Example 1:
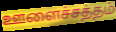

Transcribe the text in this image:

ஊளைச்சத்தம்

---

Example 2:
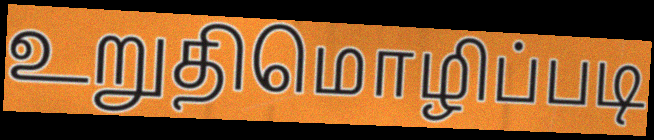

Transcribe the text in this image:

உறுதிமொழிப்படி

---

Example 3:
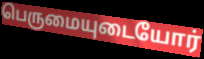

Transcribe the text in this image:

பெருமையுடையோர்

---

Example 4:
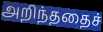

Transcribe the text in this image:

அறிந்ததைச்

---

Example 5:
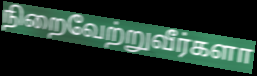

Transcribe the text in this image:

நிறைவேற்றுவீர்களா